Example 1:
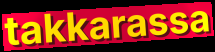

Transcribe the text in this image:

takkarassa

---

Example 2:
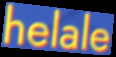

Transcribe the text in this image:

helale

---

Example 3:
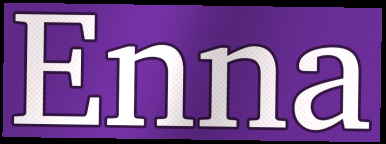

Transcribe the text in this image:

Enna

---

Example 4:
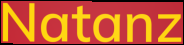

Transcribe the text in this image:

Natanz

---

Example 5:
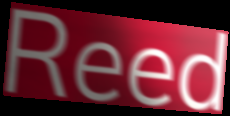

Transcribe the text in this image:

Reed